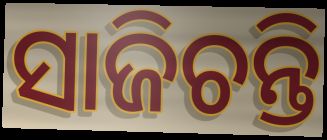
ସାଜିଚନ୍ତି